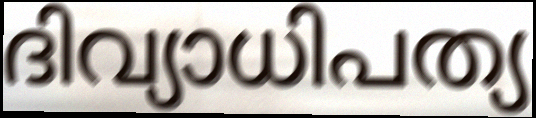
ദിവ്യാധിപത്യ